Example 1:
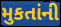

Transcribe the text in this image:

મુકતાંની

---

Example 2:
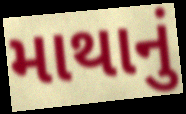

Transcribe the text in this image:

માથાનું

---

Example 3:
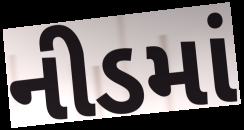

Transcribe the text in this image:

નીડમાં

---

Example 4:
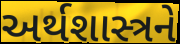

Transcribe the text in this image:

અર્થશાસ્ત્રને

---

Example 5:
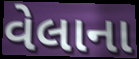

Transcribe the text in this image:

વેલાના